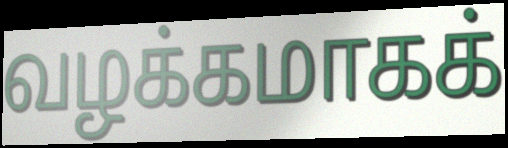
வழக்கமாகக்